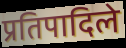
प्रतिपादिले